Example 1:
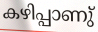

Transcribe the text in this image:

കഴിപ്പാണു്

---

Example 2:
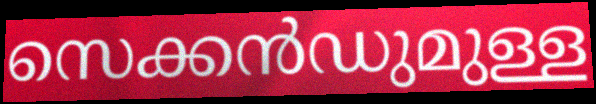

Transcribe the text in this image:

സെക്കൻഡുമുള്ള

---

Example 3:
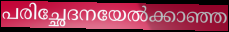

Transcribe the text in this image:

പരിച്ഛേദനയേൽക്കാഞ്ഞ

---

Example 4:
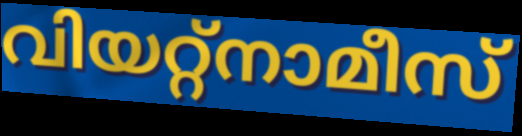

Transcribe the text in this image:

വിയറ്റ്നാമീസ്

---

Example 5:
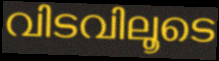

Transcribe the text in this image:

വിടവിലൂടെ